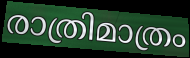
രാത്രിമാത്രം